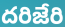
దరిజేరి